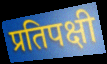
प्रतिपक्षी